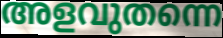
അളവുതന്നെ